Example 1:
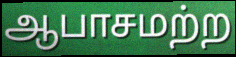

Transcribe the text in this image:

ஆபாசமற்ற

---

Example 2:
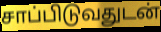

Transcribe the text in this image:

சாப்பிடுவதுடன்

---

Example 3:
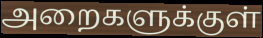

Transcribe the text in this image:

அறைகளுக்குள்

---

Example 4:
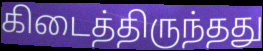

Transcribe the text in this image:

கிடைத்திருந்தது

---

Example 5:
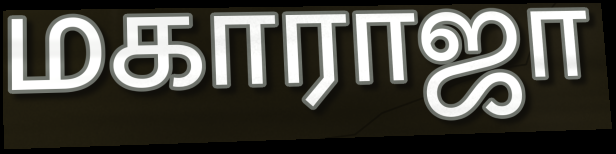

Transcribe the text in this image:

மகாராஜா